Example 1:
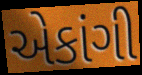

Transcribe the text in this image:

એકાંગી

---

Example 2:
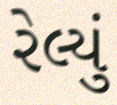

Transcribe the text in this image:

રેલ્યું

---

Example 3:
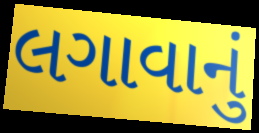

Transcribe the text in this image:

લગાવાનું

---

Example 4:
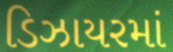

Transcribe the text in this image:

ડિઝાયરમાં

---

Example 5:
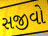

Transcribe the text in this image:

સજીવો